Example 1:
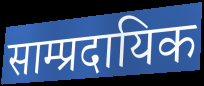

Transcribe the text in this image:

साम्प्रदायिक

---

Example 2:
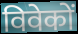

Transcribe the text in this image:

विवेकों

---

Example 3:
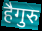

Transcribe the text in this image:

हैगुरु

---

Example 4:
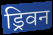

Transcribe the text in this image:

ड्रिवन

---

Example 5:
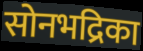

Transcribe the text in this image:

सोनभद्रिका